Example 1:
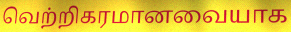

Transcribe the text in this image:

வெற்றிகரமானவையாக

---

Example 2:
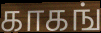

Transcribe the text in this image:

காகங்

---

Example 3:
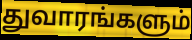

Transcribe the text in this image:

துவாரங்களும்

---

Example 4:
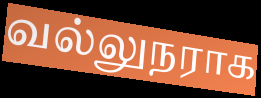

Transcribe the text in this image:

வல்லுநராக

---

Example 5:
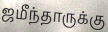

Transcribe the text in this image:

ஜமீந்தாருக்கு